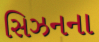
સિઝનના